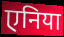
एनिया